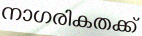
നാഗരികതക്ക്